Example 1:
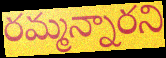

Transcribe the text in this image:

రమ్మన్నారని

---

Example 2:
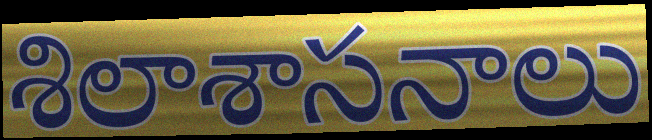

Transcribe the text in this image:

శిలాశాసనాలు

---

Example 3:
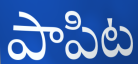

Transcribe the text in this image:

పాపిట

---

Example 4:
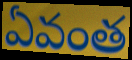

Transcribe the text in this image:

ఏవంత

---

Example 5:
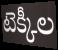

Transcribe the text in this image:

టెక్కీల